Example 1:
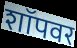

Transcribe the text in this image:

शॉपवर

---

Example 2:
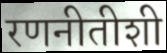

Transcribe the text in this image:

रणनीतीशी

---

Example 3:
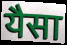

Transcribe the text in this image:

यैसा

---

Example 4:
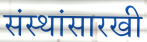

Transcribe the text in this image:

संस्थांसारखी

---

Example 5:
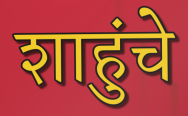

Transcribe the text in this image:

शाहुंचे